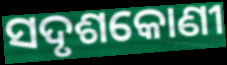
ସଦୃଶକୋଣୀ